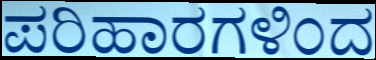
ಪರಿಹಾರಗಳಿಂದ